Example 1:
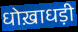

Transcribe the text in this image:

धोख़ाधड़ी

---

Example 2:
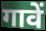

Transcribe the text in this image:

गावें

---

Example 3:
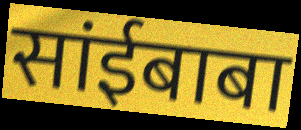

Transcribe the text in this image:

सांईबाबा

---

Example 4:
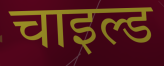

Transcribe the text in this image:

चाइल्ड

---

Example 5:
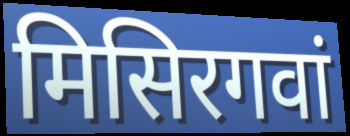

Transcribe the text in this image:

मिसिरगवां